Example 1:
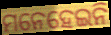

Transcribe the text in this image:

ମନେହେଇନି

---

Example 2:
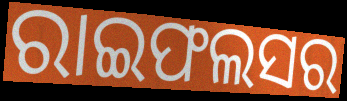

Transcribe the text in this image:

ରାଇଫଲସର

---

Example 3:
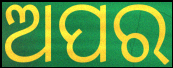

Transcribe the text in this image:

ଅପର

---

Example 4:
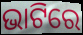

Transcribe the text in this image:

ଭାଟିରେ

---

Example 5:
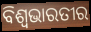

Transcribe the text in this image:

ବିଶ୍ୱଭାରତୀର